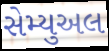
સેમ્યુઅલ